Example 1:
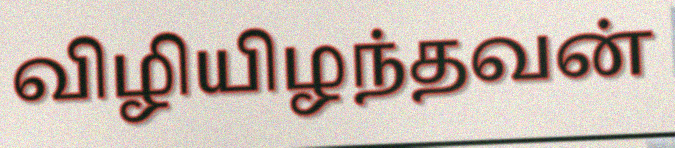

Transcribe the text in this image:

விழியிழந்தவன்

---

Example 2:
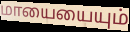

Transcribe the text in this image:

மாயையையும்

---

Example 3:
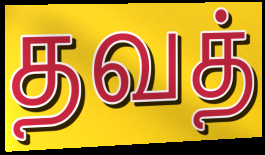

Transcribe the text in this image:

தவத்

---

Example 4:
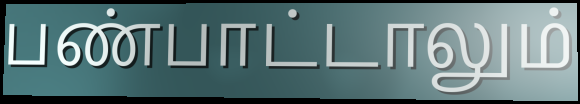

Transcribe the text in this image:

பண்பாட்டாலும்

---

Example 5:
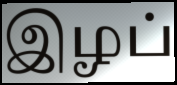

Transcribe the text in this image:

இழப்